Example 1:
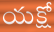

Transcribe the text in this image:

యక్షో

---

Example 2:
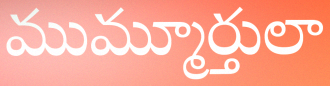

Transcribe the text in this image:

ముమ్మూర్తులా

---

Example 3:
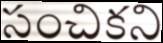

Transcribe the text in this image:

సంచికని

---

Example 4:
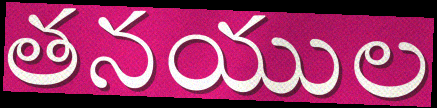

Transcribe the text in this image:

తనయుల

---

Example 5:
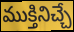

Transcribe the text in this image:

ముక్తినిచ్చే